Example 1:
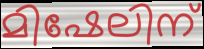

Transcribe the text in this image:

മിഷേലിന്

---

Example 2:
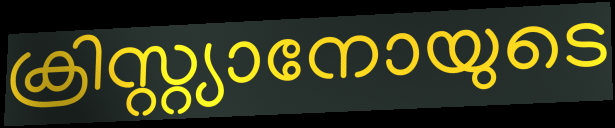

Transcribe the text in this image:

ക്രിസ്റ്റ്യാനോയുടെ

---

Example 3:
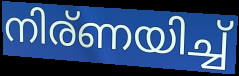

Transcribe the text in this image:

നിര്ണയിച്ച്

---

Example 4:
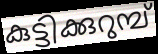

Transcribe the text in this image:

കുട്ടിക്കുറുമ്പ്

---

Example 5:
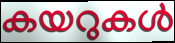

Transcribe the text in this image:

കയറുകൾ